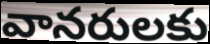
వానరులకు